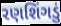
રણશિંગડું